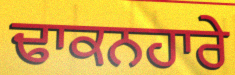
ਢਾਕਨਹਾਰੇ